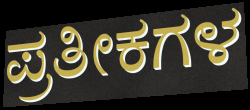
ಪ್ರತೀಕಗಳ